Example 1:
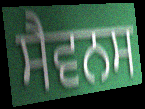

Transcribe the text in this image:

ਸੈਵਨਸ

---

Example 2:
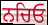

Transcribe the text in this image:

ਨਚਿਓ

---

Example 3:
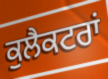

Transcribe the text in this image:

ਕੁਲੈਕਟਰਾਂ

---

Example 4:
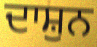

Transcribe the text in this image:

ਦਾਸ਼ੁਨ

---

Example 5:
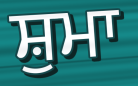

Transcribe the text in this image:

ਸ਼ੁਮਾ